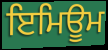
ਇਮਿਊਮ